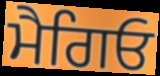
ਮੈਗਿਓ